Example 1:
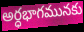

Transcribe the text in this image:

అర్ధభాగమునకు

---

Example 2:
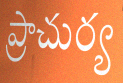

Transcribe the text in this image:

ప్రాచుర్య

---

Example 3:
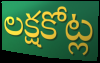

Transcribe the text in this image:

లక్షకోట్ల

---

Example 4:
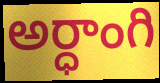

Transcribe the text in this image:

అర్ధాంగి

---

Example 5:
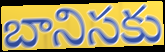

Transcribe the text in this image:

బానిసకు